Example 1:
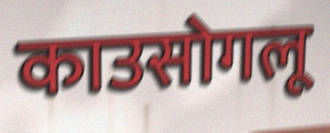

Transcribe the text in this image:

काउसोगलू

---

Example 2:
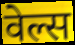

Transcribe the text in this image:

वेल्स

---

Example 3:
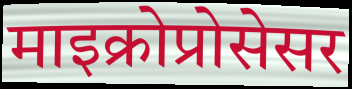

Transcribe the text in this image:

माइक्रोप्रोसेसर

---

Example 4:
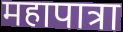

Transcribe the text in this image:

महापात्रा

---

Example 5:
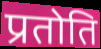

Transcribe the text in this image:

प्रतोति